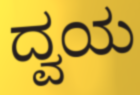
ದ್ವಯ